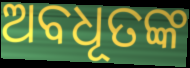
ଅବଧୂତଙ୍କ